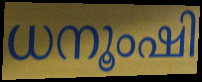
ധനൂംഷി